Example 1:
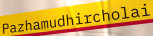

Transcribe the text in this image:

Pazhamudhircholai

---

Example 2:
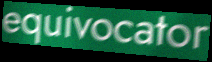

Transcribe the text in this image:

equivocator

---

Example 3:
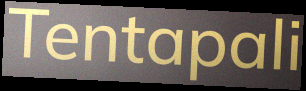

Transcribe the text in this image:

Tentapali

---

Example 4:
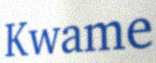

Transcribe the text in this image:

Kwame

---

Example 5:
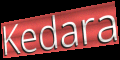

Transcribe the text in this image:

Kedara